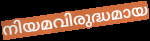
നിയമവിരുദ്ധമായ